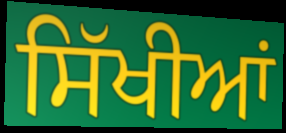
ਸਿੱਖੀਆਂ